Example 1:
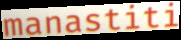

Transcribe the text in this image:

manastiti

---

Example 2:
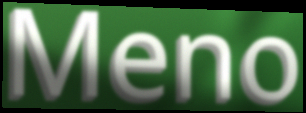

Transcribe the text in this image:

Meno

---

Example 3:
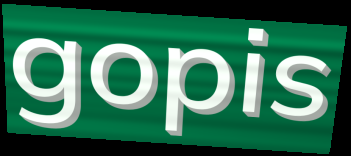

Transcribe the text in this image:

gopis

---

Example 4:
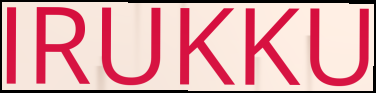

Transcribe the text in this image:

IRUKKU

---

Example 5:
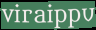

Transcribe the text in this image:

viraippu